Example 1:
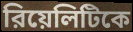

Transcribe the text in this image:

রিয়েলিটিকে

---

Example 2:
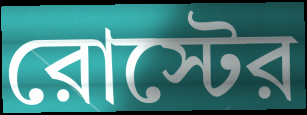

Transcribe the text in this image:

রোস্টের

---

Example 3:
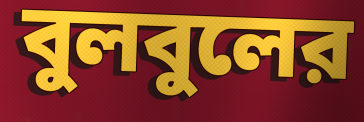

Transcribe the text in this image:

বুলবুলের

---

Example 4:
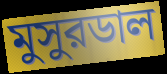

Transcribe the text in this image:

মুসুরডাল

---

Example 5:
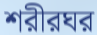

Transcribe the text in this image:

শরীরঘর